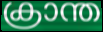
ക്രാന്ത